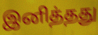
இனித்தது